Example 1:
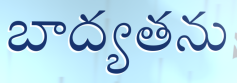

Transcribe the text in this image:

బాద్యతను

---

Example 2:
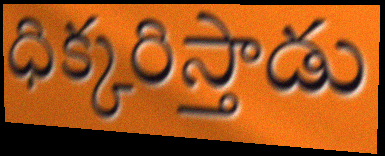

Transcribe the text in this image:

ధిక్కరిస్తాడు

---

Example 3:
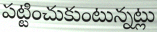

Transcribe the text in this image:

పట్టించుకుంటున్నట్లు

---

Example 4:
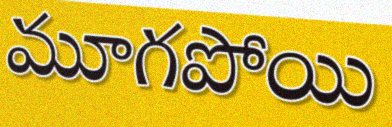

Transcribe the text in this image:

మూగపోయి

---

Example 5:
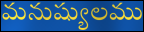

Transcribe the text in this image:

మనుష్యులము